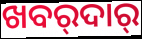
ଖବର୍‍ଦାର୍